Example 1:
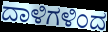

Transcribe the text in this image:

ದಾಳಿಗಳಿಂದ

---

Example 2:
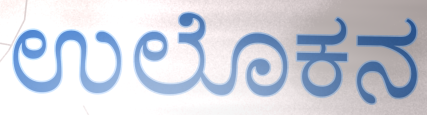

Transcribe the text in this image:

ಉಲೊಕನ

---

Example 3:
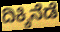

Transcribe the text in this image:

ದಿಕ್ಕಿನೆಡೆ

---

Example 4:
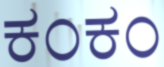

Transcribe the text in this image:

ಕಂಕಂ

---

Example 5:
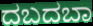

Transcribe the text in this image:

ದಬದಬಾ